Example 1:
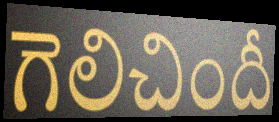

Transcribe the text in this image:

గెలిచిందీ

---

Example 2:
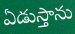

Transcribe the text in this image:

ఏడుస్తాను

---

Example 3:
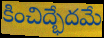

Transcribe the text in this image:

కించిద్భేదమే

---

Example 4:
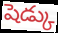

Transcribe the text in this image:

షెడ్కు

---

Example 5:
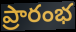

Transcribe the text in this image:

ప్రారంభ